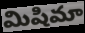
మిషిమా